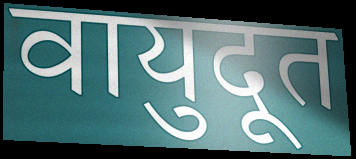
वायुदूत